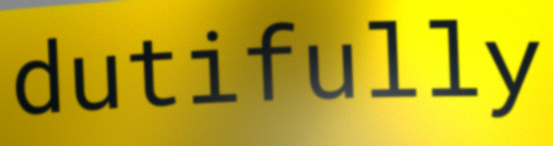
dutifully